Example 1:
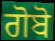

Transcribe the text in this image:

ਗੋਬੋ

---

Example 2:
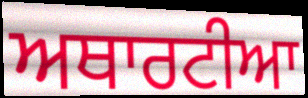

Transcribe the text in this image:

ਅਥਾਰਟੀਆ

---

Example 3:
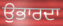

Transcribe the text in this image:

ਉਭਾਰਦਾ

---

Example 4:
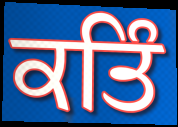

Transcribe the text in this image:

ਕਤਿੰ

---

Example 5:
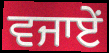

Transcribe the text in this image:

ਵਜਾਏਂ